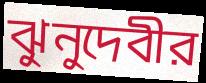
ঝুনুদেবীর